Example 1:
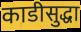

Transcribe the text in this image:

काडीसुद्धा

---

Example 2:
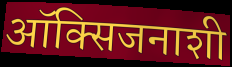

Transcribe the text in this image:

ऑक्सिजनाशी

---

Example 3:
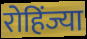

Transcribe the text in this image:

रोहिंज्या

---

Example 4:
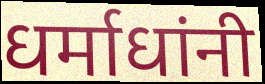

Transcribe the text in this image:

धर्माधांनी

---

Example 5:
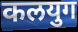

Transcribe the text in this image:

कलयुग